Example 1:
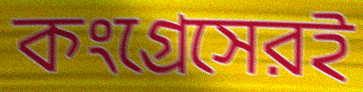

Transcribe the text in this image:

কংগ্রেসেরই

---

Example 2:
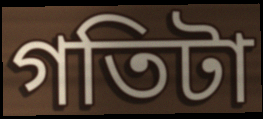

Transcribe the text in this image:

গতিটা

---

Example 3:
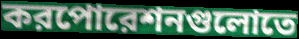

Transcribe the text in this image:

করপোরেশনগুলোতে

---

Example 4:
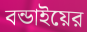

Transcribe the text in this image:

বন্ডাইয়ের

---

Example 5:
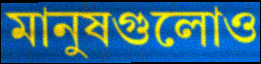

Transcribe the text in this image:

মানুষগুলোও